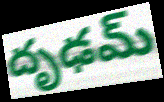
దృఢమ్